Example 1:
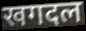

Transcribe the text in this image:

खगदल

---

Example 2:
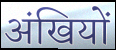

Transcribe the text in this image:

अंखियों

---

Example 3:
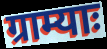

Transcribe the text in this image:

ग्राम्याः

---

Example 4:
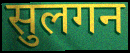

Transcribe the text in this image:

सुलगन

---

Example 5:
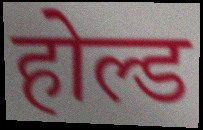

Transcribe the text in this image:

होल्ड